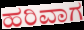
ಹರಿವಾಗ